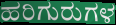
ಹರಿಗುರುಗಳ